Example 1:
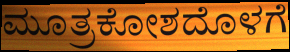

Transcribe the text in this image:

ಮೂತ್ರಕೋಶದೊಳಗೆ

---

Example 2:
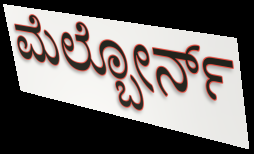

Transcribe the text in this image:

ಮೆಲ್ಬೋರ್ನ್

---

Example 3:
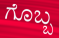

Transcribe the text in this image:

ಗೊಬ್ಬ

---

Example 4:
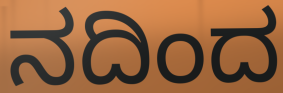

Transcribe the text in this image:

ನದಿಂದ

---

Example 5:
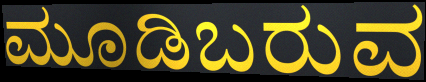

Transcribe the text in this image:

ಮೂಡಿಬರುವ